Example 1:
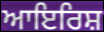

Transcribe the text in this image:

ਆਇਰਿਸ਼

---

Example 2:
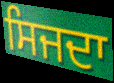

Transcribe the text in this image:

ਸਿਜਦਾ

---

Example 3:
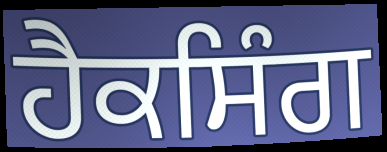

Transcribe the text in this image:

ਹੈਕਸਿੰਗ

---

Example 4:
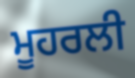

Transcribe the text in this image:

ਮੂਹਰਲੀ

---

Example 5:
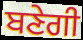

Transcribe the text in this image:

ਬਣੇਗੀ